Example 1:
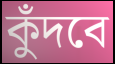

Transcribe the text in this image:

কুঁদবে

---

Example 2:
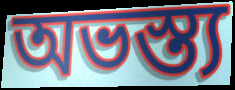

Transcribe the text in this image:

অভস্ত্য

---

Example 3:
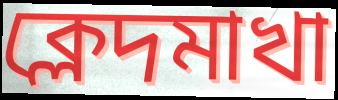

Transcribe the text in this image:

ক্লেদমাখা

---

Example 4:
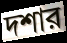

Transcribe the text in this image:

দশার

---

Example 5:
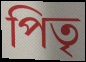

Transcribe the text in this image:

পিতৃ